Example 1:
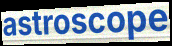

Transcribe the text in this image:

astroscope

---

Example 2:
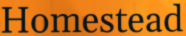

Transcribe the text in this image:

Homestead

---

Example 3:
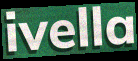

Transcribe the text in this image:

ivella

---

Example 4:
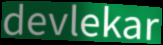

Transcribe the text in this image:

devlekar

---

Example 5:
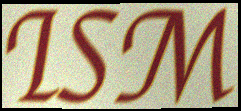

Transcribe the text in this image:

ISM